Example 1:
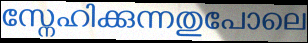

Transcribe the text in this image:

സ്നേഹിക്കുന്നതുപോലെ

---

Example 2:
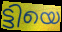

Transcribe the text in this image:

ട്ടിയെ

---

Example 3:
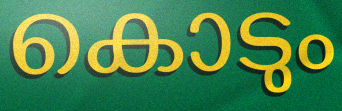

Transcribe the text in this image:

കൊടും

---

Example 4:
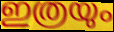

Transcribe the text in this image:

ഇത്രയും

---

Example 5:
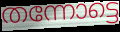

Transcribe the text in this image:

തന്നോട്ടെ